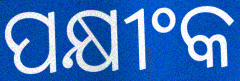
ପକ୍ଷୀଂକ